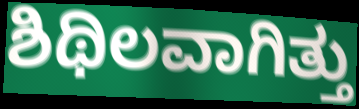
ಶಿಥಿಲವಾಗಿತ್ತು